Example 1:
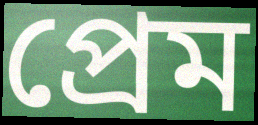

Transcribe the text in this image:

প্ৰেম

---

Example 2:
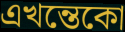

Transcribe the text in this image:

এখন্তেকো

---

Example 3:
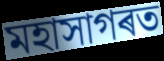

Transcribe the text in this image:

মহাসাগৰত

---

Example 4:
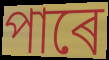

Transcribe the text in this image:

পাৰে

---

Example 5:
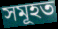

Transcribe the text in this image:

সমূহত